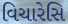
વિચારેસિ